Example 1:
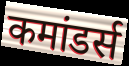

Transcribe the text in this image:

कमांडर्स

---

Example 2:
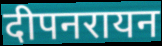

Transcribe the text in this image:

दीपनरायन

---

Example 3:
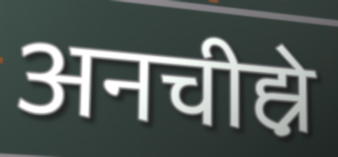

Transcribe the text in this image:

अनचीह्ने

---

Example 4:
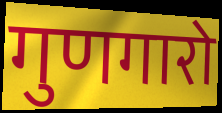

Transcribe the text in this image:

गुणगारो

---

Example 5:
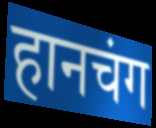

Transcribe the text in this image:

हानचंग